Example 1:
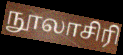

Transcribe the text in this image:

நூலாசிரி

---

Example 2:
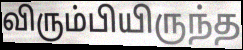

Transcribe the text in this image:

விரும்பியிருந்த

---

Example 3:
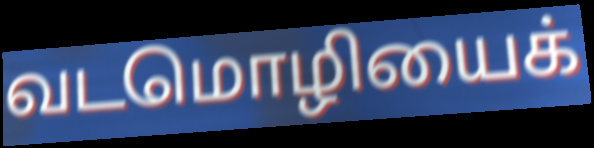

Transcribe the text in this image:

வடமொழியைக்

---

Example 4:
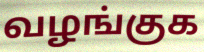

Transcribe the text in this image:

வழங்குக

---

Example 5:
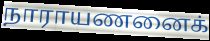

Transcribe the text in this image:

நாராயணனைக்